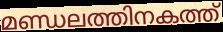
മണ്ഡലത്തിനകത്ത്